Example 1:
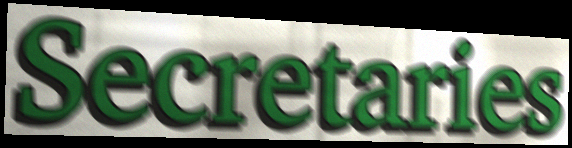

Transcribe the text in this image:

Secretaries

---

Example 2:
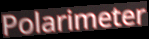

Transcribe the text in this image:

Polarimeter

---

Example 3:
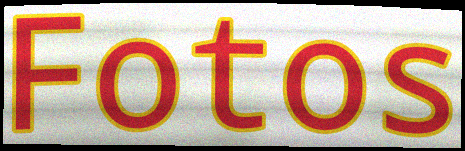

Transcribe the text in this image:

Fotos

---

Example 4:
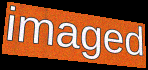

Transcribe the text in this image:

imaged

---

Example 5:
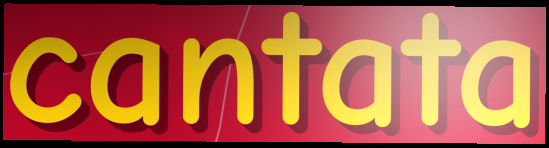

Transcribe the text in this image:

cantata